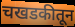
चखडकीतून